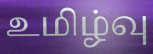
உமிழ்வு